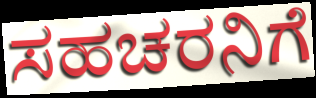
ಸಹಚರನಿಗೆ